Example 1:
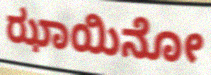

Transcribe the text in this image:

ಝಾಯಿನೋ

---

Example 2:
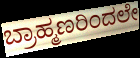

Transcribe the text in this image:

ಬ್ರಾಹ್ಮಣರಿಂದಲೇ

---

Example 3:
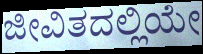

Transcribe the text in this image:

ಜೀವಿತದಲ್ಲಿಯೇ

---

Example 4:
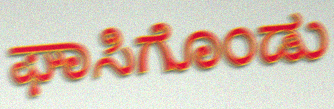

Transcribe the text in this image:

ಘಾಸಿಗೊಂಡು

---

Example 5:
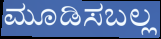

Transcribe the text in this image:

ಮೂಡಿಸಬಲ್ಲ